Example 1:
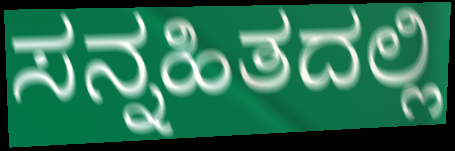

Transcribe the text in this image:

ಸನ್ನಹಿತದಲ್ಲಿ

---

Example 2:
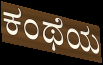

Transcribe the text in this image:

ಕಂಥೆಯ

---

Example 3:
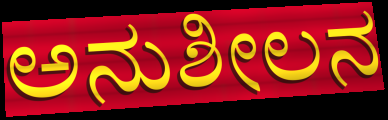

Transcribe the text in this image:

ಅನುಶೀಲನ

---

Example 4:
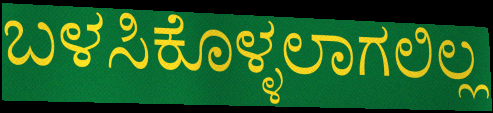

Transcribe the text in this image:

ಬಳಸಿಕೊಳ್ಳಲಾಗಲಿಲ್ಲ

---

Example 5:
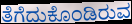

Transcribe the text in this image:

ತೆಗೆದುಕೊಂಡಿರುವ